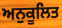
ਅਨੁਕੂਲਿਤ